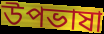
উপভাষা